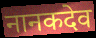
नानकदेव